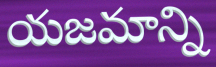
యజమాన్ని